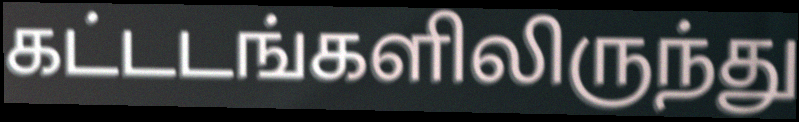
கட்டடங்களிலிருந்து